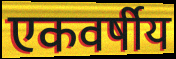
एकवर्षीय